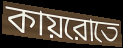
কায়রোতে